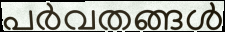
പർവതങ്ങൾ